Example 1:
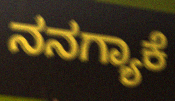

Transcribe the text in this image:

ನನಗ್ಯಾಕೆ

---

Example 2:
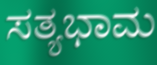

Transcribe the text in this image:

ಸತ್ಯಭಾಮ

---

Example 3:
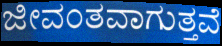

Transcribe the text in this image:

ಜೀವಂತವಾಗುತ್ತವೆ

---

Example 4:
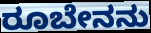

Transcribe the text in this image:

ರೂಬೇನನು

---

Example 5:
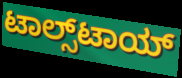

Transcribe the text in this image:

ಟಾಲ್ಸ್‌ಟಾಯ್